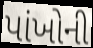
પાંખોની